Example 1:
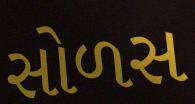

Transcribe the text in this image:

સોળસ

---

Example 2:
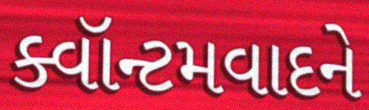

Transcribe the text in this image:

ક્વૉન્ટમવાદને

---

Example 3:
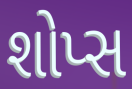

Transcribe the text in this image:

શોપ્સ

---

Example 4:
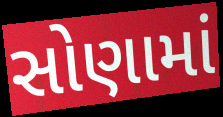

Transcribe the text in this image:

સોણામાં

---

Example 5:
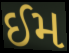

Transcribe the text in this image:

ઈમ